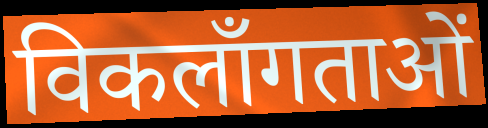
विकलाँगताओं